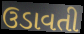
ઉડાવતી